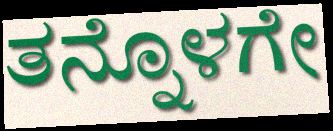
ತನ್ನೊಳಗೇ